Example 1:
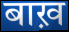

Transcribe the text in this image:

बाख़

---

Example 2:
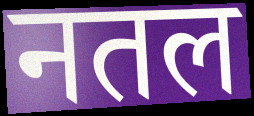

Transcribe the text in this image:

नतल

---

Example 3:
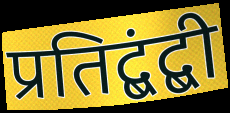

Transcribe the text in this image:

प्रतिद्बंद्बी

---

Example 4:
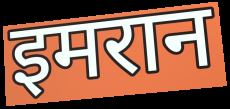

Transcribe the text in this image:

इमरान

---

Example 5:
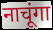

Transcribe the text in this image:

नाचूंगा